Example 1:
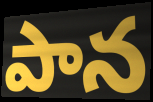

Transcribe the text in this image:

పాన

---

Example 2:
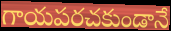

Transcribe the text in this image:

గాయపరచకుండానే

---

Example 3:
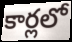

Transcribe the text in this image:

కార్లలో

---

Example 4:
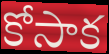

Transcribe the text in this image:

కోసాక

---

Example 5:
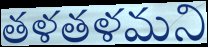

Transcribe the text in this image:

తళతళమని